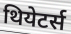
थियेटर्स